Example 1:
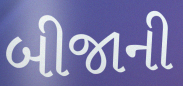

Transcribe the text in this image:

બીજાની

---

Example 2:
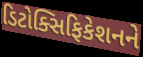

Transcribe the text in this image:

ડિટોક્સિફિકેશનને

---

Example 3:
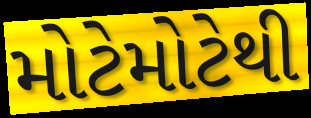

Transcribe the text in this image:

મોટેમોટેથી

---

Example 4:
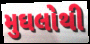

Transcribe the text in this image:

મુઘલોથી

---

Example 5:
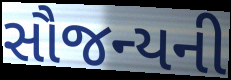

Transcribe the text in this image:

સૌજન્યની